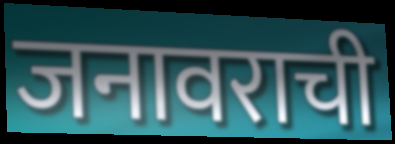
जनावराची